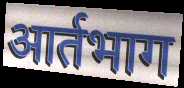
आर्तभाग